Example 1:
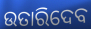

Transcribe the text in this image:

ଉତାରିଦେବ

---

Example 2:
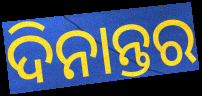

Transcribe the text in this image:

ଦିନାନ୍ତର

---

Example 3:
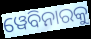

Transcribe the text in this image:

ୱେବିନାରକୁ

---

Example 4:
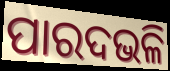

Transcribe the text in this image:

ପାରଦଭଳି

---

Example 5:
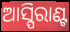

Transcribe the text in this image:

ଆସ୍ପିରାଣ୍ଟ